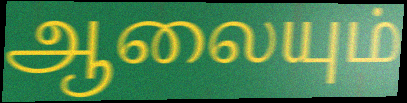
ஆலையும்